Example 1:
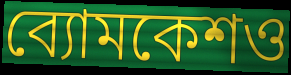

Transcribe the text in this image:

ব্যোমকেশও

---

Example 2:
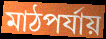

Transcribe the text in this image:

মাঠপর্যায়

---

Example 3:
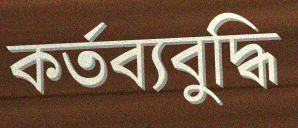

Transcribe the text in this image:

কর্তব্যবুদ্ধি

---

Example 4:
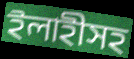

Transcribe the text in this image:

ইলাহীসহ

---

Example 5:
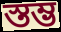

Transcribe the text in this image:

স্তম্ভ